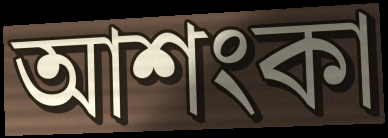
আশংকা